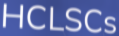
HCLSCs